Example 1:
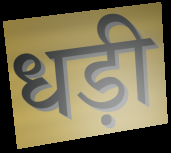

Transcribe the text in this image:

धड़ी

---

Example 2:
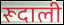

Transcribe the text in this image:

रूदाली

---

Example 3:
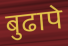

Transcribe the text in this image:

बुढापे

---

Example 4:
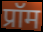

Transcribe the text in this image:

प्रॉम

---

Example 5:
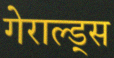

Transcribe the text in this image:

गेराल्ड्स